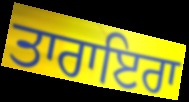
ਤਾਰਾਇਰਾ